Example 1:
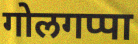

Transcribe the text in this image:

गोलगप्पा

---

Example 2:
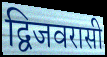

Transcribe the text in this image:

द्विजवरासी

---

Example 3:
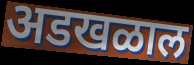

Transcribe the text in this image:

अडखळाल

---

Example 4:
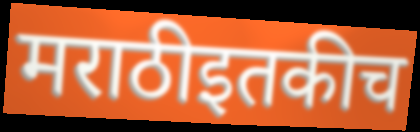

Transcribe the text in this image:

मराठीइतकीच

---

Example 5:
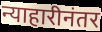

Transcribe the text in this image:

न्याहारीनंतर